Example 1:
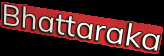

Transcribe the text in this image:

Bhattaraka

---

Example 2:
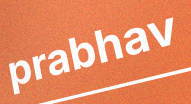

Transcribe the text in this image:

prabhav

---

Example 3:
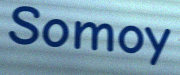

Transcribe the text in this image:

Somoy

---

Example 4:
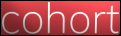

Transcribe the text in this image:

cohort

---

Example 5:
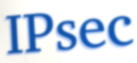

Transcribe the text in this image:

IPsec